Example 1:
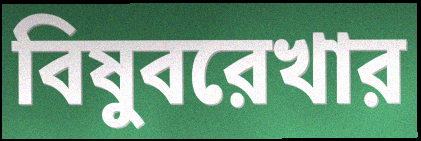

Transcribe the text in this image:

বিষুবরেখার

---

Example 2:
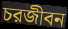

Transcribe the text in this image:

চরজীবন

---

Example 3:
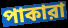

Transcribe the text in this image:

পাকারা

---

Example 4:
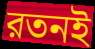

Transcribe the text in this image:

রতনই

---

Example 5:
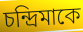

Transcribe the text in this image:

চন্দ্রিমাকে